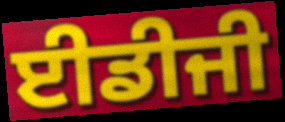
ਈਡੀਜੀ